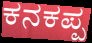
ಕನಕಪ್ಪ